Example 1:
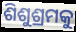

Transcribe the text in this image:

ଶିଶୁଶ୍ରମକୁ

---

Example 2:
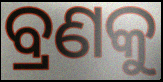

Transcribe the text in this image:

ବ୍ରଣକୁ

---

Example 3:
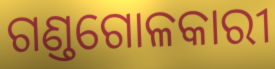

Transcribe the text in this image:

ଗଣ୍ଡଗୋଳକାରୀ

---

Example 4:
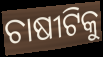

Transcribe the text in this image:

ଚାଷୀଟିକୁ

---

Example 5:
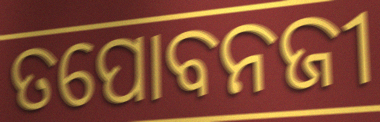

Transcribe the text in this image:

ତପୋବନଜୀ